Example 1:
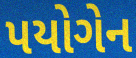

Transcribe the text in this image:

પયોગેન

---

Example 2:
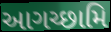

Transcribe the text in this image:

આગચ્છામિ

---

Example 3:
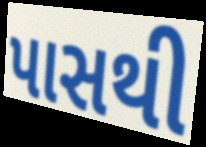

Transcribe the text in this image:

પાસથી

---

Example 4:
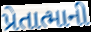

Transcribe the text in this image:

પ્રેતાત્માની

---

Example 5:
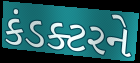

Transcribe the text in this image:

કંડક્ટરને